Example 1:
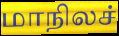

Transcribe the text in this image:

மாநிலச்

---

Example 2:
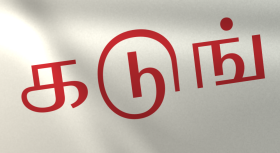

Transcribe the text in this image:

கடுங்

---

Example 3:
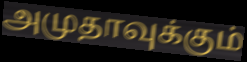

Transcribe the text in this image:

அமுதாவுக்கும்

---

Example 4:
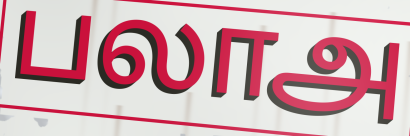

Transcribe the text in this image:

பலாஅ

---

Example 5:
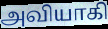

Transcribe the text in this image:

அவியாகி